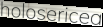
holosericea